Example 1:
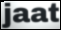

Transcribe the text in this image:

jaat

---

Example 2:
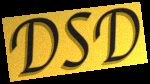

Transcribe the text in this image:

DSD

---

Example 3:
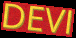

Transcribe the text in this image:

DEVI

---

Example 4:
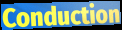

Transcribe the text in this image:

Conduction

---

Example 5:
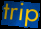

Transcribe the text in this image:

trip